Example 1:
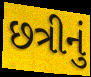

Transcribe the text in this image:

છત્રીનું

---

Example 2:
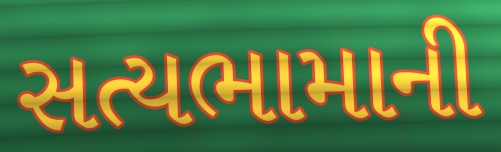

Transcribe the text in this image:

સત્યભામાની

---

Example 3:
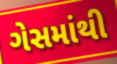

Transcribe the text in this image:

ગેસમાંથી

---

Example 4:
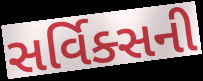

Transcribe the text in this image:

સર્વિક્સની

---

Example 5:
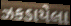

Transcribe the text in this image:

ઝકડાયેલા